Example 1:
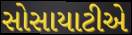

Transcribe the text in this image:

સોસાયાટીએ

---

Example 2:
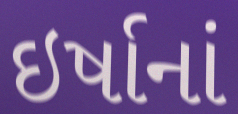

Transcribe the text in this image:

ઇર્ષાનાં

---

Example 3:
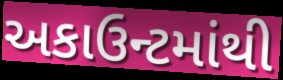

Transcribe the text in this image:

અકાઉન્ટમાંથી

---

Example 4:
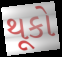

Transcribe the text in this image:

થૂકો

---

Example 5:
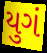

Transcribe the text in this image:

યુગં